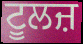
ਟੂਲਜ਼